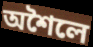
অশৈলে